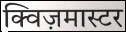
क्विज़मास्टर